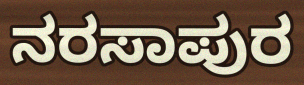
ನರಸಾಪುರ